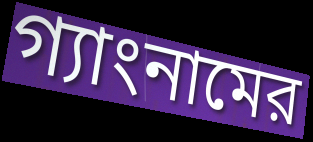
গ্যাংনামের